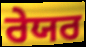
ਰੇਯਰ